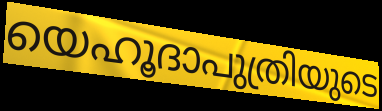
യെഹൂദാപുത്രിയുടെ